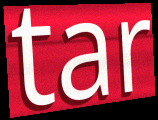
tar